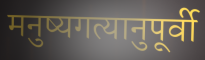
मनुष्यगत्यानुपूर्वी